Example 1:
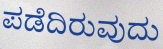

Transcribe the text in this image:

ಪಡೆದಿರುವುದು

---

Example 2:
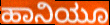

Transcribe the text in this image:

ಹಾನಿಯೂ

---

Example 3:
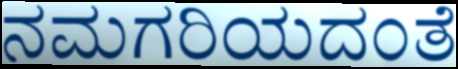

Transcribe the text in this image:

ನಮಗರಿಯದಂತೆ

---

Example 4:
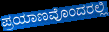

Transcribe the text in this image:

ಪ್ರಯಾಣವೊಂದರಲ್ಲಿ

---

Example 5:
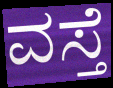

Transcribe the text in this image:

ವಸ್ತೆ